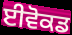
ਈਵੋਕਡ